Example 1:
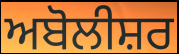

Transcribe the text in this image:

ਅਬੋਲੀਸ਼ਰ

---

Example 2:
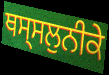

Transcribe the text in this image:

ਥਸ੍ਸਲੁਨੀਕੇ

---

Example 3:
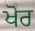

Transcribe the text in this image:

ਖੋਰ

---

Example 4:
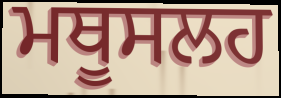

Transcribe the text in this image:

ਮਥੂਸਲਹ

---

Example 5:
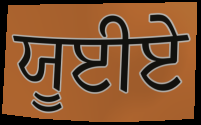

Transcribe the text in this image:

ਯੂਈਏ